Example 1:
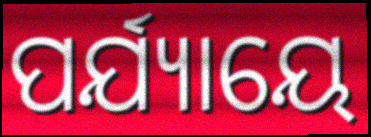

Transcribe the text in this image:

ପର୍ଯ୍ୟାୟେ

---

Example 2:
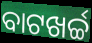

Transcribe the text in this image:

ବାଟଖର୍ଚ୍ଚ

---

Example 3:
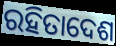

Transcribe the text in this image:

ରହିତାଦେଶ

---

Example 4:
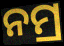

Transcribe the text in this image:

ନମ୍ର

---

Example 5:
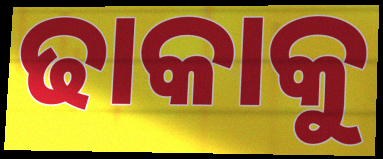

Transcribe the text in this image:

ଢାକାକୁ